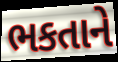
ભકતાને